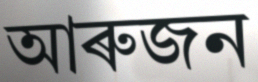
আৰুজন